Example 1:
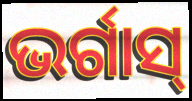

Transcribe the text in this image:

ଭର୍ଗାସ୍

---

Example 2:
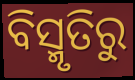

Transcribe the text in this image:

ବିସ୍ମୃତିରୁ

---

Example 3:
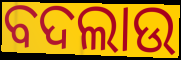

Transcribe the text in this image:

ବଦଲାଉ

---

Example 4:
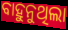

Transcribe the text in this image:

ବାହୁନୁଥିଲା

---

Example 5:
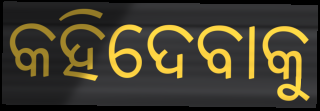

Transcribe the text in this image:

କହିଦେବାକୁ